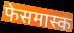
फेसमास्क